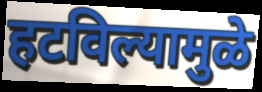
हटविल्यामुळे